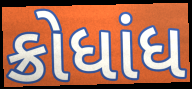
ક્રોધાંધ